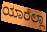
ಯಾರೆಲ್ಲಾ